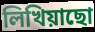
লিখিয়াছো